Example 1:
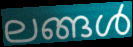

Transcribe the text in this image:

ലങ്ങൾ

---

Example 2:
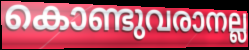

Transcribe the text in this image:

കൊണ്ടുവരാനല്ല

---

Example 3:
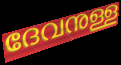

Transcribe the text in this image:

ദേവനുള്ള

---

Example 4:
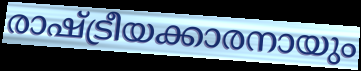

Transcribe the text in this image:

രാഷ്ട്രീയക്കാരനായും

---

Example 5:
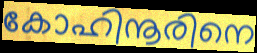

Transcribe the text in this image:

കോഹിനൂരിനെ